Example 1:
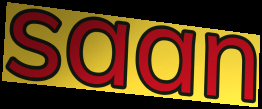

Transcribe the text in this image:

saan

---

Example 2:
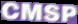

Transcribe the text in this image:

CMSP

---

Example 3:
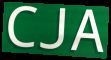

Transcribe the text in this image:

CJA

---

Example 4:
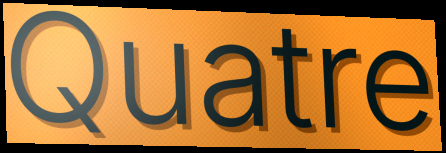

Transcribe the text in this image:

Quatre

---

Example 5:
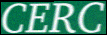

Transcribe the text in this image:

CERC